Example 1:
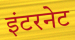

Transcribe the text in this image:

इंटरनेट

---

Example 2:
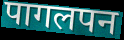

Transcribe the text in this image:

पागलपन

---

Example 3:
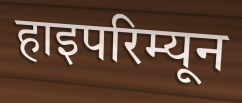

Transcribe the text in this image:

हाइपरिम्यून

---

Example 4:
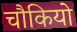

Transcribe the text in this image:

चौकियो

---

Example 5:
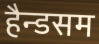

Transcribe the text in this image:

हैन्डसम